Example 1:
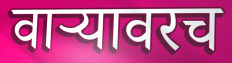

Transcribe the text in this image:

वाऱ्यावरच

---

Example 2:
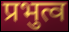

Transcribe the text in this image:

प्रभुत्व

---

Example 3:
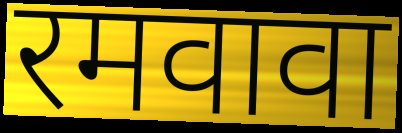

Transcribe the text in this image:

रमवावा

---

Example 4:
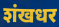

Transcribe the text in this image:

शंखधर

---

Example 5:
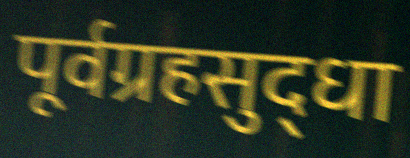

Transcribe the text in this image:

पूर्वग्रहसुद्धा